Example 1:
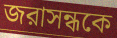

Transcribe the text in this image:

জরাসন্ধকে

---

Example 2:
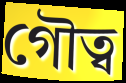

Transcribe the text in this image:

গৌত্ব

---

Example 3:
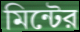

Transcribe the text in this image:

মিন্টের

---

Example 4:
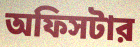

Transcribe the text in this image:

অফিসটার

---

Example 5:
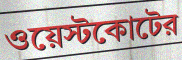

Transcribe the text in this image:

ওয়েস্টকোটের